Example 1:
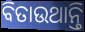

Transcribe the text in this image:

ବିତାଉଥାନ୍ତି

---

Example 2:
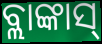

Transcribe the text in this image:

ବ୍ଲାଙ୍କାସ୍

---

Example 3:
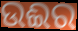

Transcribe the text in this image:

ଉଈର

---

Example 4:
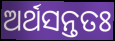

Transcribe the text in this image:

ଅର୍ଥସନ୍ତତଃ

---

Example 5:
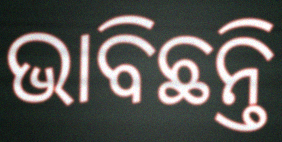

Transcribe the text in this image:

ଭାବିଛନ୍ତି